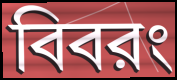
বিবরং